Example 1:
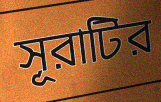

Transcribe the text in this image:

সূরাটির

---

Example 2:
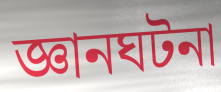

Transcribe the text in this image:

জ্ঞানঘটনা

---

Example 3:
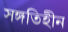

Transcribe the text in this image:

সঙ্গতিহীন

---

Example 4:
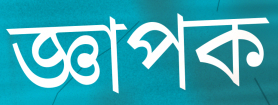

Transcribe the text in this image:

জ্ঞাপক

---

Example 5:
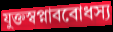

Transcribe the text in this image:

যুক্তস্বপ্নাববোধস্য